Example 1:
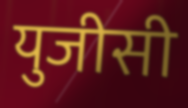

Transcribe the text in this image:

युजीसी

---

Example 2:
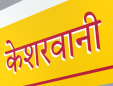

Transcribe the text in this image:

केशरवानी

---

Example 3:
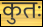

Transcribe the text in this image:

कुतः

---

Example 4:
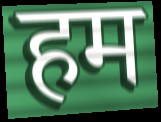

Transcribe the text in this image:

हम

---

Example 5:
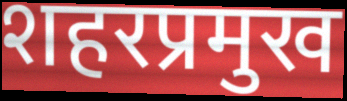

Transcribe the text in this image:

शहरप्रमुख